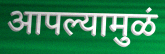
आपल्यामुळं